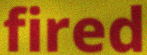
fired